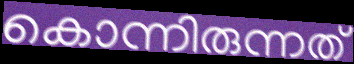
കൊന്നിരുന്നത്